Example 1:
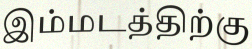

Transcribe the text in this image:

இம்மடத்திற்கு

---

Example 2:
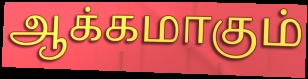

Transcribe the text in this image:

ஆக்கமாகும்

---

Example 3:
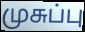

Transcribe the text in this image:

முசுப்பு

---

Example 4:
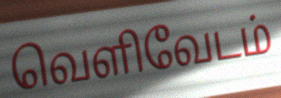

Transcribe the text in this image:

வெளிவேடம்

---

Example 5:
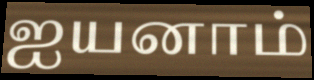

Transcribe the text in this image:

ஐயனாம்